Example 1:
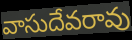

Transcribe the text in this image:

వాసుదేవరావు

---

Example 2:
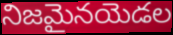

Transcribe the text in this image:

నిజమైనయెడల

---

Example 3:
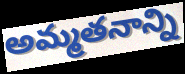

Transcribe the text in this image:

అమ్మతనాన్ని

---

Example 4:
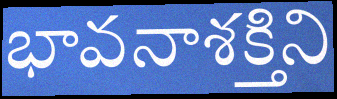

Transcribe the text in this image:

భావనాశక్తిని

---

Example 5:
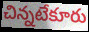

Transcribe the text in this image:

చిన్నటేకూరు